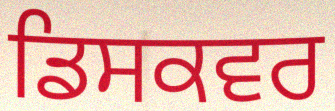
ਡਿਸਕਵਰ